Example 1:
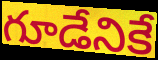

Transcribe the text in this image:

గూడేనికే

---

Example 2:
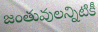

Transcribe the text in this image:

జంతువులన్నిటికీ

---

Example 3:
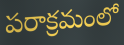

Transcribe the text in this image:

పరాక్రమంలో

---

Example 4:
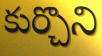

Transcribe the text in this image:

కుర్చొని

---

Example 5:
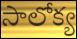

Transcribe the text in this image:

సాలోక్య